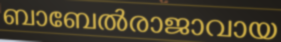
ബാബേൽരാജാവായ